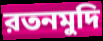
রতনমুদি